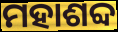
ମହାଶବ୍ଦ